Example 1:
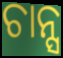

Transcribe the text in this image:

ଚାନ୍ସ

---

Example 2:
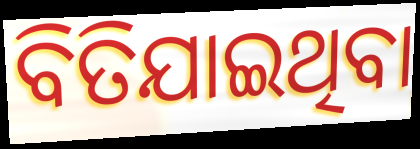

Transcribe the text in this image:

ବିତିଯାଇଥିବା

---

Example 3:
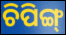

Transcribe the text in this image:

ଚିପିଙ୍ଗ୍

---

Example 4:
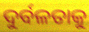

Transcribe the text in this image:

ଦୁର୍ବଳତାକୁ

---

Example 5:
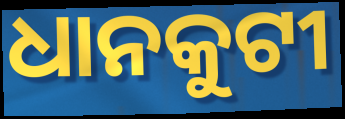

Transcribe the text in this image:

ଧାନକୁଟୀ